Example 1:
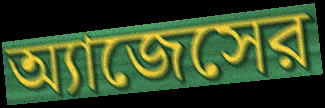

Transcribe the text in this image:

অ্যাজেসের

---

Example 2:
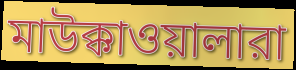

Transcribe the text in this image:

মাউক্কাওয়ালারা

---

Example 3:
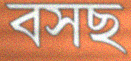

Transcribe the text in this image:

বসছ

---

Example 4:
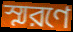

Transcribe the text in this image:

স্মরণে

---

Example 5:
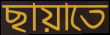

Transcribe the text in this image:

ছায়াতে